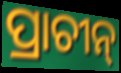
ପ୍ରାଚୀନ୍